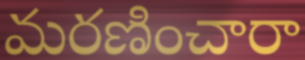
మరణించారా